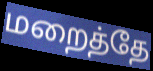
மறைத்தே